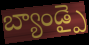
బ్యాండ్పై